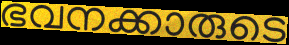
ഭവനക്കാരുടെ